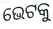
ଭେଟକୁ